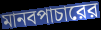
মানবপাচারের